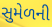
સુમેળની